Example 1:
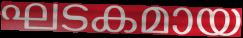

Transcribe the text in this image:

ഘടകമായ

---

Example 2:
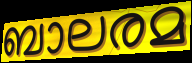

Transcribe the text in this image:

ബാലരമ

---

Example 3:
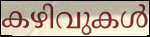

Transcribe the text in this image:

കഴിവുകൾ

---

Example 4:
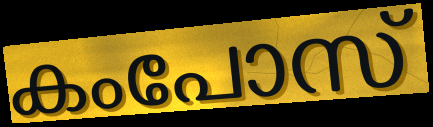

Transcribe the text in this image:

കംപോസ്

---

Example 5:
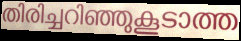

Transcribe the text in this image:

തിരിച്ചറിഞ്ഞുകൂടാത്ത